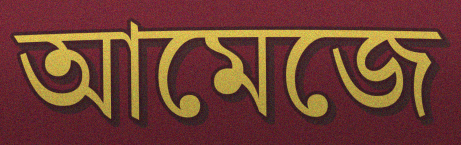
আমেজে